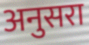
अनुसरा